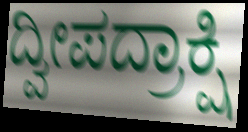
ದ್ವೀಪದ್ರಾಕ್ಷಿ